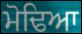
ਮੋਢਿਆ